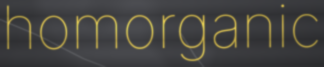
homorganic